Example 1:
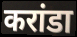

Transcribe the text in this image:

करांडा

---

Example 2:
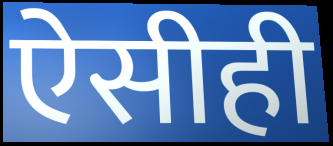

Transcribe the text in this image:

ऐसीही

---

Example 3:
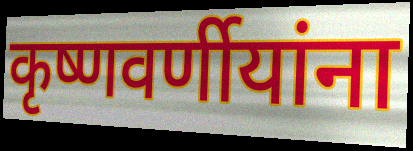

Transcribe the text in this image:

कृष्णवर्णीयांना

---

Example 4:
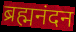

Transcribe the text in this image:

ब्रह्मनंदन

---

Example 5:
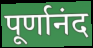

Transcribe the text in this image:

पूर्णानंद